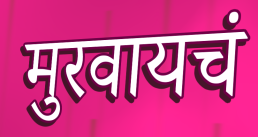
मुरवायचं